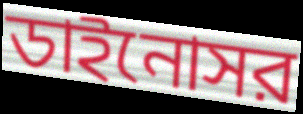
ডাইনোসর